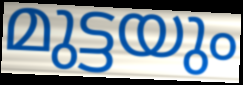
മുട്ടയും